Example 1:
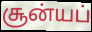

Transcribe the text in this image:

சூன்யப்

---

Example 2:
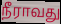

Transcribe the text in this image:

நீராவது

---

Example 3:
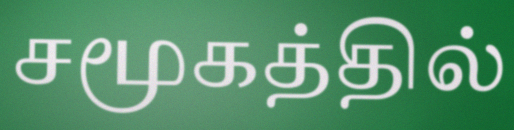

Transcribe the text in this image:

சமூகத்தில்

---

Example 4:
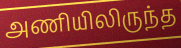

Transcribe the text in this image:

அணியிலிருந்த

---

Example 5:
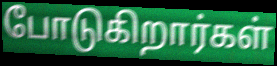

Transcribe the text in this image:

போடுகிறார்கள்